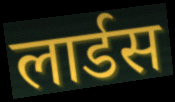
लार्डस